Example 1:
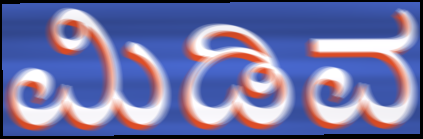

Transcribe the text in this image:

ಮಿಡಿವ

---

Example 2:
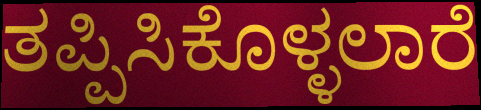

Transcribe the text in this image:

ತಪ್ಪಿಸಿಕೊಳ್ಳಲಾರೆ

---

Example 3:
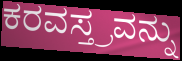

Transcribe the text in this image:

ಕರವಸ್ತ್ರವನ್ನು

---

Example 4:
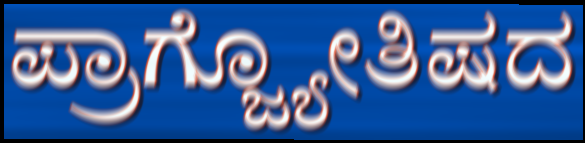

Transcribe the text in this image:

ಪ್ರಾಗ್ಜ್ಯೋತಿಷದ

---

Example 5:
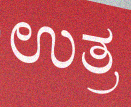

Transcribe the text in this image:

ಉತ್ರ